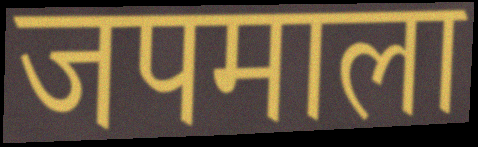
जपमाला